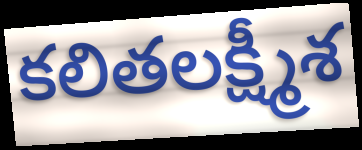
కలితలక్ష్మీశ